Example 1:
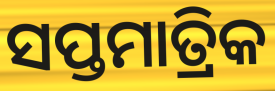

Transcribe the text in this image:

ସପ୍ତମାତ୍ରିକ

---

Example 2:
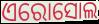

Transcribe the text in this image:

ଏରୋସୋଲ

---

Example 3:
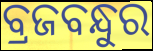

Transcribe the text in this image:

ବ୍ରଜବନ୍ଧୁର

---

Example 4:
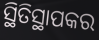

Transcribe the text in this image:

ସ୍ଥିତିସ୍ଥାପକର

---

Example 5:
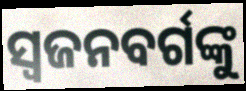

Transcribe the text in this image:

ସ୍ୱଜନବର୍ଗଙ୍କୁ